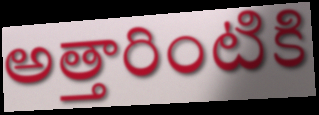
అత్తారింటికి